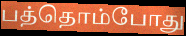
பத்தொம்போது